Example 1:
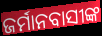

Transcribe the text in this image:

ଜର୍ମାନବାସୀଙ୍କ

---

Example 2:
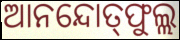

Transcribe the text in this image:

ଆନନ୍ଦୋତ୍‍ଫୁଲ୍ଲ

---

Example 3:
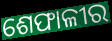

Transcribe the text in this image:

ଶେଫାଳୀର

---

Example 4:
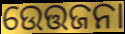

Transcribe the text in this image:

ଉେତ୍ତଜନା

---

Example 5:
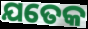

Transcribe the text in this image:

ଯତେକ